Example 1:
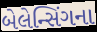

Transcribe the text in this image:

બેલેન્સિંગના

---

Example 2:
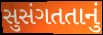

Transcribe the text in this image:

સુસંગતતાનું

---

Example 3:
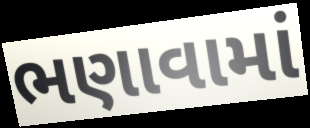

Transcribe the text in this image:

ભણાવામાં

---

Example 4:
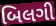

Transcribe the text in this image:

બિલગી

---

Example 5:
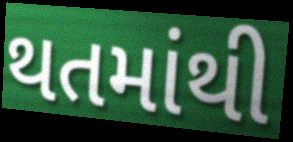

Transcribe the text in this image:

થતમાંથી